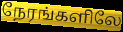
நேரங்களிலே